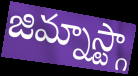
జిమ్నాస్ట్గా